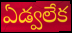
ఏడ్వలేక